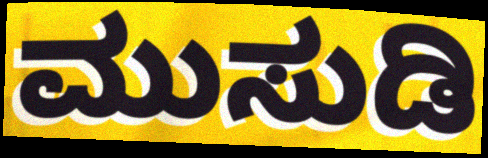
ಮುಸುಡಿ